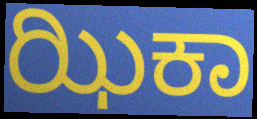
ಝಿಕಾ